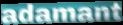
adamant